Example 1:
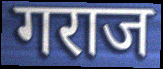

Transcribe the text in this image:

गराज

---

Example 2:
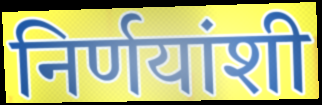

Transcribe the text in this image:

निर्णयांशी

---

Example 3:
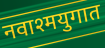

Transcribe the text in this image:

नवाश्मयुगात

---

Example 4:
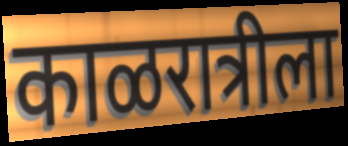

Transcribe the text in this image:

काळरात्रीला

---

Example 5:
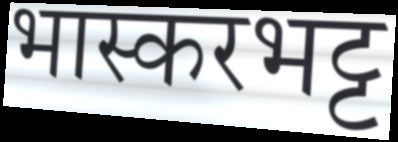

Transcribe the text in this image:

भास्करभट्ट